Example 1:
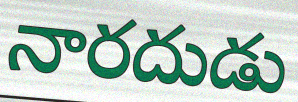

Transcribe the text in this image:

నారదుడు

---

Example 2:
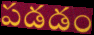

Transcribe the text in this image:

పడడం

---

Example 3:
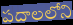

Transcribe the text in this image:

పదాలలోని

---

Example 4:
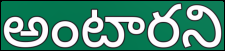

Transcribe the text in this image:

అంటారని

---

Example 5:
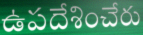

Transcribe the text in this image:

ఉపదేశించేరు